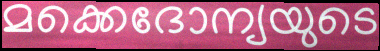
മക്കെദോന്യയുടെ